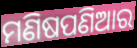
ମଣିଷପଣିଆର